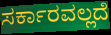
ಸರ್ಕಾರವಲ್ಲದೆ